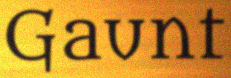
Gaunt